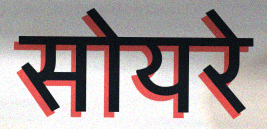
सोयरे